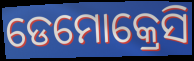
ଡେମୋକ୍ରେସି